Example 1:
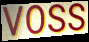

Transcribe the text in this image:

VOSS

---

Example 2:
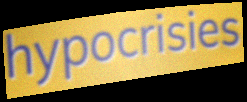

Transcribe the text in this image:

hypocrisies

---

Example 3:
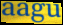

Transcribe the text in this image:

aagu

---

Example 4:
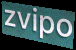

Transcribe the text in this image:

zvipo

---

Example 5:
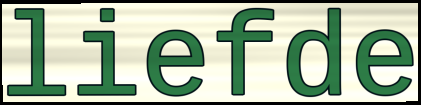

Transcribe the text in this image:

liefde